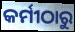
କର୍ମୀଠାରୁ